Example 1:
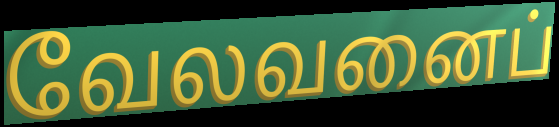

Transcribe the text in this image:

வேலவனைப்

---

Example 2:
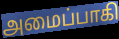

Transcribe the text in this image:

அமைப்பாகி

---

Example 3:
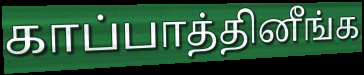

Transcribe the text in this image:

காப்பாத்தினீங்க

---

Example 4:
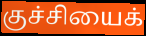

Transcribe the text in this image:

குச்சியைக்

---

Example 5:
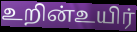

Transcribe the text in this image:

உறின்உயிர்